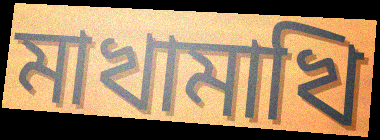
মাখামাখি